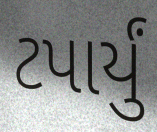
ટપાર્યું